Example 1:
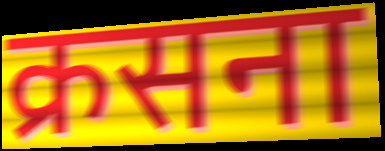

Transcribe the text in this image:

क्रसना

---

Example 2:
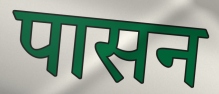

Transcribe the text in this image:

पासन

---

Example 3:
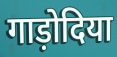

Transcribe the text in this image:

गाड़ोदिया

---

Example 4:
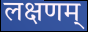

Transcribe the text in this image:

लक्षणम्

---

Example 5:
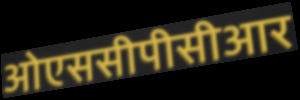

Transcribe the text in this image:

ओएससीपीसीआर